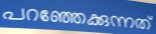
പറഞ്ഞേക്കുന്നത്